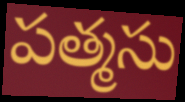
పత్మసు